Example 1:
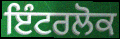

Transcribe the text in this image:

ਇੰਟਰਲੋਕ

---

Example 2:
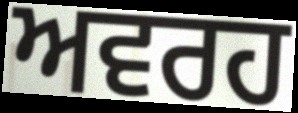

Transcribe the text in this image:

ਅਵਰਹ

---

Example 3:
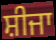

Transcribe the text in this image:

ਸ਼ੀਜਾ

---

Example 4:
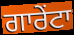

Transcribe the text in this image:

ਗਾਰੇਂਟਾ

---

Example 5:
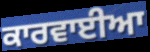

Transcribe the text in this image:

ਕਾਰਵਾਈਆ